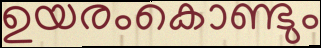
ഉയരംകൊണ്ടും